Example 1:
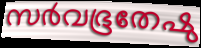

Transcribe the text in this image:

സർവഭൂതേഷു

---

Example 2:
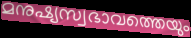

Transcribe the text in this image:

മനുഷ്യസ്വഭാവത്തെയും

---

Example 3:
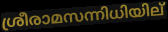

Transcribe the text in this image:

ശ്രീരാമസന്നിധിയില്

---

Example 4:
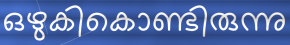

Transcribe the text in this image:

ഒഴുകികൊണ്ടിരുന്നു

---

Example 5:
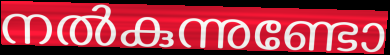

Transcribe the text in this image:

നൽകുന്നുണ്ടോ